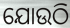
ଯୋଉଠି